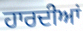
ਹਾਰਦੀਆਂ